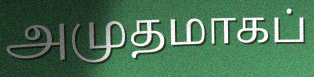
அமுதமாகப்